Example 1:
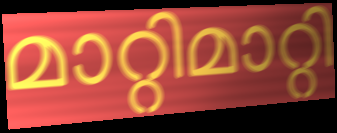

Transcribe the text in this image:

മാറ്റിമാറ്റി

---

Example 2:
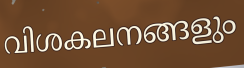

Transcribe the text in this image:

വിശകലനങ്ങളും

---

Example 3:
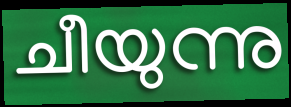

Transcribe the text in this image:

ചീയുന്നു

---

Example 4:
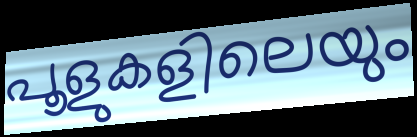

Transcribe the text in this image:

പൂളുകളിലെയും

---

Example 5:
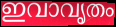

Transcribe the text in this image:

ഇവാവൃതം